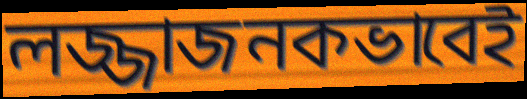
লজ্জাজনকভাবেই